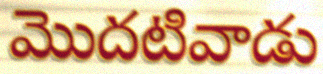
మొదటివాడు